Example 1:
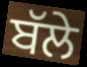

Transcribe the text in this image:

ਬੱਲੇ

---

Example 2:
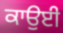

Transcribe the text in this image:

ਕਾਉਈ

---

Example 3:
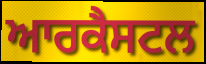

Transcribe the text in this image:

ਆਰਕੈਸਟਲ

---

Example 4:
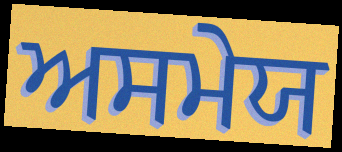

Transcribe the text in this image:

ਅਸਮੇਯ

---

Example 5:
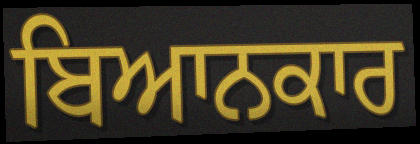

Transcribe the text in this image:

ਬਿਆਨਕਾਰ